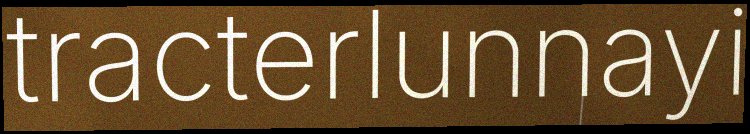
tracterlunnayi